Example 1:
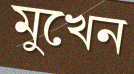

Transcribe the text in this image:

মুখেন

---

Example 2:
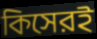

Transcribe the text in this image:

কিসেরই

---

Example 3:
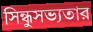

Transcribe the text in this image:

সিন্ধুসভ্যতার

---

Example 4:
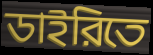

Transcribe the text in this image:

ডাইরিতে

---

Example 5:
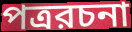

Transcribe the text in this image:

পত্ররচনা